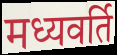
मध्यवर्ति